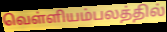
வெள்ளியம்பலத்தில்